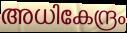
അധികേന്ദ്രം